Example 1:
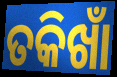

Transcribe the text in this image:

ତକିଖାଁ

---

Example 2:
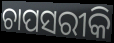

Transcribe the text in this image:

ଚାପସରୀକି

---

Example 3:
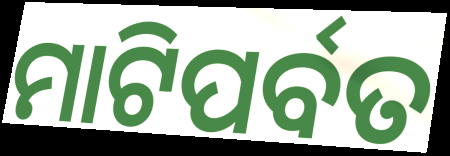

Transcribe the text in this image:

ମାଟିପର୍ବତ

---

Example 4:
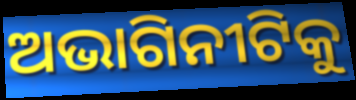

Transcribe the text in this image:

ଅଭାଗିନୀଟିକୁ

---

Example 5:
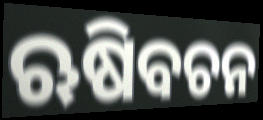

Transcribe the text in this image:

ଋଷିବଚନ